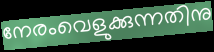
നേരംവെളുക്കുന്നതിനു